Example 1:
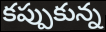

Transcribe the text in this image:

కప్పుకున్న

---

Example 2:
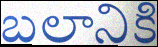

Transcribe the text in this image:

బలానికి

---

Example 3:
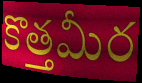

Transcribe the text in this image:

కొత్తమీర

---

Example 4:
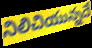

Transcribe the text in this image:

నిలిచియున్నదే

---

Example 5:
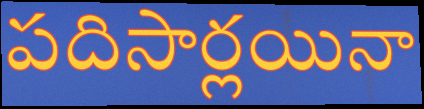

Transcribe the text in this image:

పదిసార్లయినా